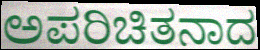
ಅಪರಿಚಿತನಾದ